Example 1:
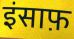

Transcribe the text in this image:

इंसाफ़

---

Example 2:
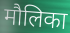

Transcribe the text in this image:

मौलिका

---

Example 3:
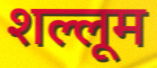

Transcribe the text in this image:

शल्लूम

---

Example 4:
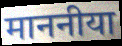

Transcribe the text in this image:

माननीया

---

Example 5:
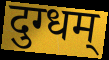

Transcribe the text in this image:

दुग्धम्